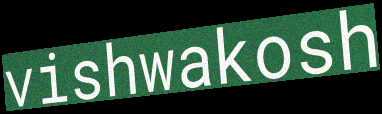
vishwakosh